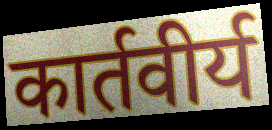
कार्तवीर्य